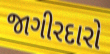
જાગીરદારો